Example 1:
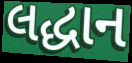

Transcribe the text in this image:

લદ્ધાન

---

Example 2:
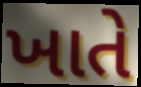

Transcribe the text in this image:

ખાતે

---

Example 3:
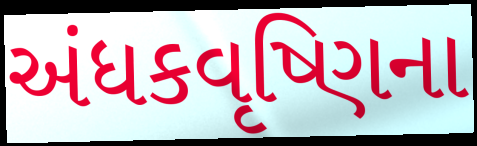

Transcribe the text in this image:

અંધકવૃષ્ણિના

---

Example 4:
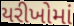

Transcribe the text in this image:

યરીખોમાં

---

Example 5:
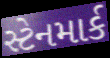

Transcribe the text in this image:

સ્ટેનમાર્ક